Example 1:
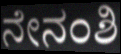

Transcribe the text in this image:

ನೇನಂಶಿ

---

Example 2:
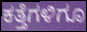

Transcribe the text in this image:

ಕತ್ತೆಗಳಿಗೂ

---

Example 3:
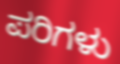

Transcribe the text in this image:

ಪರಿಗಳು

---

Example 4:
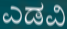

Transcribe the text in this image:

ಎಡವಿ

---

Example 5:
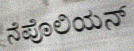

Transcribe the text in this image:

ನೆಪೊಲಿಯನ್